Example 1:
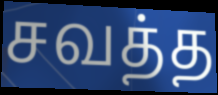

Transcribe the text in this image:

சவத்த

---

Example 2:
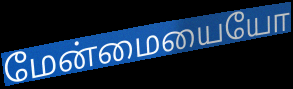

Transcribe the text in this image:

மேன்மையையோ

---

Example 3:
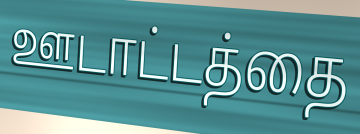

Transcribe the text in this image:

ஊடாட்டத்தை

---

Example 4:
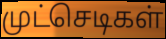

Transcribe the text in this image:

முட்செடிகள்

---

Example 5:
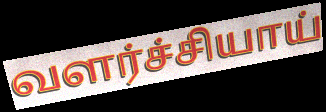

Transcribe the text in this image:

வளர்ச்சியாய்